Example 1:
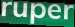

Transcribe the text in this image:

ruper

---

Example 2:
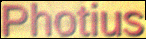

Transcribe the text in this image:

Photius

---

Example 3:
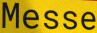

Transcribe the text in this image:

Messe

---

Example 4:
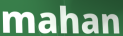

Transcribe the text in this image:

mahan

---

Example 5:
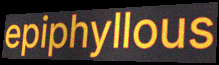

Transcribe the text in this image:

epiphyllous